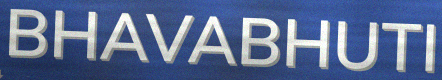
BHAVABHUTI